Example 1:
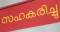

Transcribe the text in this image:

സഹകരിച്ചു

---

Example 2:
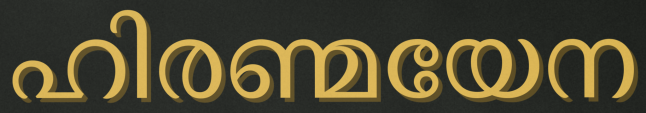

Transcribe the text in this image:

ഹിരണ്മയേന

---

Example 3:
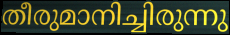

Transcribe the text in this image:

തീരുമാനിച്ചിരുന്നു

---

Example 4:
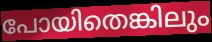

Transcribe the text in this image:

പോയിതെങ്കിലും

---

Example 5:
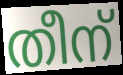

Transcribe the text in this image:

തീന്